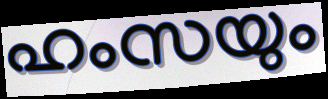
ഹംസയും